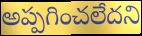
అప్పగించలేదని